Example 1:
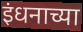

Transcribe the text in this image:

इंधनाच्या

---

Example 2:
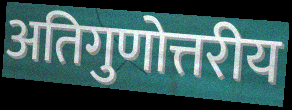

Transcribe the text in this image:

अतिगुणोत्तरीय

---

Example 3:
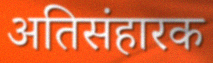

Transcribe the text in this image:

अतिसंहारक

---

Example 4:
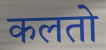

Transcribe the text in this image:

कलतो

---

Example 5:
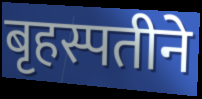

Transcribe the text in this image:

बृहस्पतीने